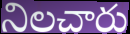
నిలచారు